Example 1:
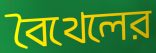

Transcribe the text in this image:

বৈথেলের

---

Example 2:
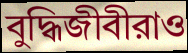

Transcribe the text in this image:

বুদ্ধিজীবীরাও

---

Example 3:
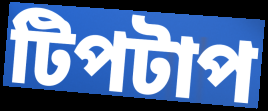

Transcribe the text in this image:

টিপটাপ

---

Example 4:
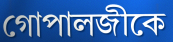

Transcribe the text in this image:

গোপালজীকে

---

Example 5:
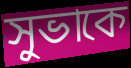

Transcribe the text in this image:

সুভাকে